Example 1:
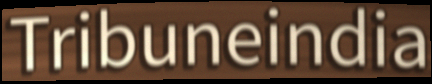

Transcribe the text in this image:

Tribuneindia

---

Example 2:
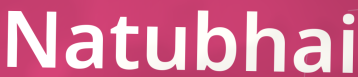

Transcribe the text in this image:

Natubhai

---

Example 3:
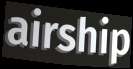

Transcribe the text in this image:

airship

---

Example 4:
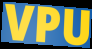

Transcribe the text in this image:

VPU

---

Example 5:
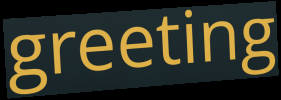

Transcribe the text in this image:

greeting